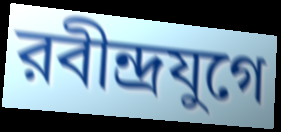
রবীন্দ্রযুগে